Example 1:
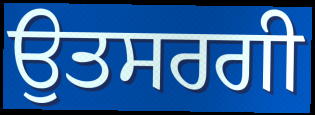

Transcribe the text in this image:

ਉਤਸਰਗੀ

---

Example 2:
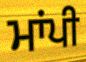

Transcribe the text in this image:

ਮਾਂਪੀ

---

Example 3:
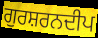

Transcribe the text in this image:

ਗੁਰਸ਼ਰਨਦੀਪ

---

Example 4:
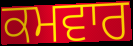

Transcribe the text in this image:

ਕਮਵਾਰ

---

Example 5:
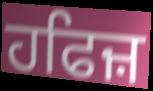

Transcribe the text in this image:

ਹਫਿਜ਼